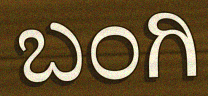
ಬಂಗಿ